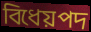
বিধেয়পদ